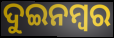
ଦୁଇନମ୍ୱର